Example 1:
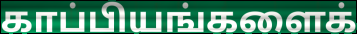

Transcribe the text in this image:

காப்பியங்களைக்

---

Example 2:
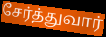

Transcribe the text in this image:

சேர்த்துவார்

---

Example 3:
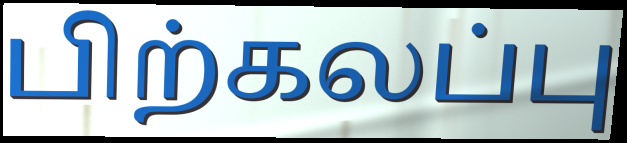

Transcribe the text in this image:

பிற்கலப்பு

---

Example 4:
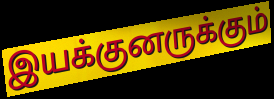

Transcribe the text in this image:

இயக்குனருக்கும்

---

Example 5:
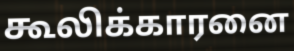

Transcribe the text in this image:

கூலிக்காரனை